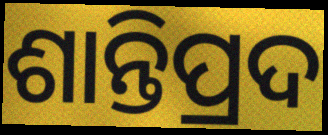
ଶାନ୍ତିପ୍ରଦ